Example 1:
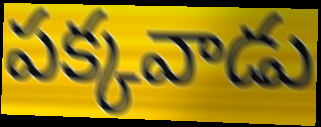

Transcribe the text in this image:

పక్కవాడు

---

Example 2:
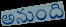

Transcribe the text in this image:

అనుంది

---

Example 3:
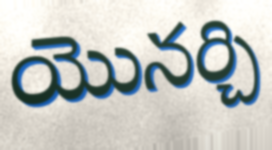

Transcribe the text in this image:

యొనర్చి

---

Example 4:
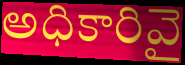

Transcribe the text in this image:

అధికారివై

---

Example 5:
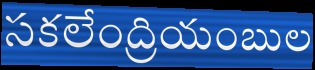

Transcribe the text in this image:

సకలేంద్రియంబుల